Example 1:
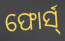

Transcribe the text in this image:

ଫୋର୍ସ୍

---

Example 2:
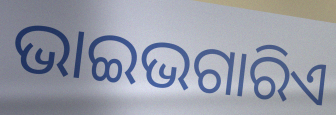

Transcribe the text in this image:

ଭାଇଭଗାରିଏ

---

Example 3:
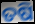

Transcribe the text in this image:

ତଷି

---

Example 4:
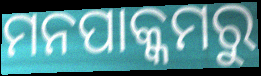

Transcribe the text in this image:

ମନପାକ୍କମରୁ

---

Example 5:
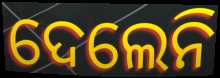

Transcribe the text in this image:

ଦେଲେନି